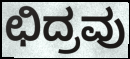
ಛಿದ್ರವು